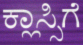
ಕ್ಲಾಸ್ಸಿಗೆ